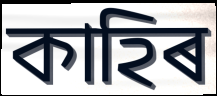
কাহিৰ